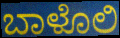
ಬಾಳೊಲಿ